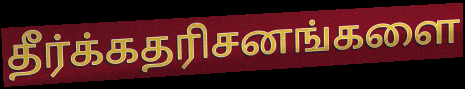
தீர்க்கதரிசனங்களை